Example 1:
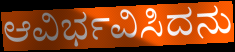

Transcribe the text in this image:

ಆವಿರ್ಭವಿಸಿದನು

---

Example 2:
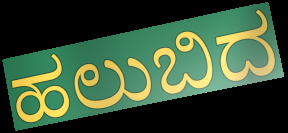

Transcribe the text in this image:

ಹಲುಬಿದ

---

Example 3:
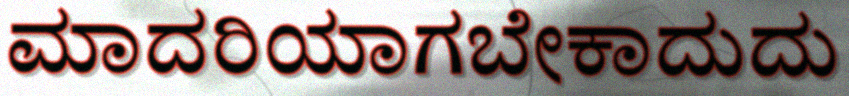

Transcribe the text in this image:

ಮಾದರಿಯಾಗಬೇಕಾದುದು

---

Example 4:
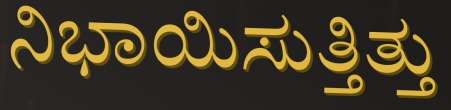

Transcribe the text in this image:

ನಿಭಾಯಿಸುತ್ತಿತ್ತು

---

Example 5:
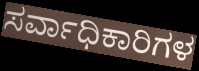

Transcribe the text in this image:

ಸರ್ವಾಧಿಕಾರಿಗಳ